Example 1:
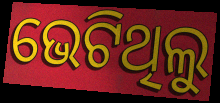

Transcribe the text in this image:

ଭେଟିଥିଲୁ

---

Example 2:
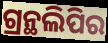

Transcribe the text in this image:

ଗ୍ରନ୍ଥଲିପିର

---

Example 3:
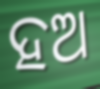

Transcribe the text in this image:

ହଅ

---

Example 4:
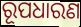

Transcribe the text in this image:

ରୂପଧାରଣ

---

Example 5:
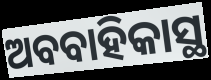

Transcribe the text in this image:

ଅବବାହିକାସ୍ଥ